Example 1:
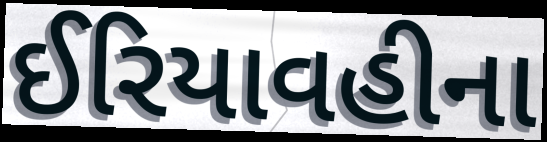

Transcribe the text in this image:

ઈરિયાવહીના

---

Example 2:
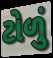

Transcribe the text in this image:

ટોળું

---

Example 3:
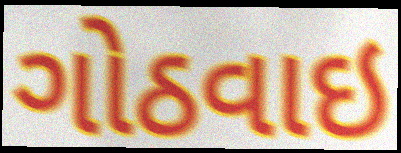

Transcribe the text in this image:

ગોઠવાઇ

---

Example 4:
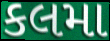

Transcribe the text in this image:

કલમા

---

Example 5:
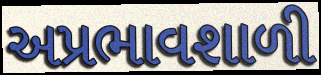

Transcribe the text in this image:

અપ્રભાવશાળી